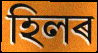
হিলৰ